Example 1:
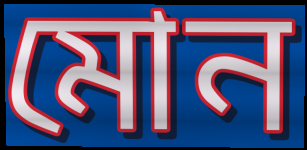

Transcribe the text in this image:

মোন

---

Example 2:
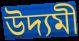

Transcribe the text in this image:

উদ্যমী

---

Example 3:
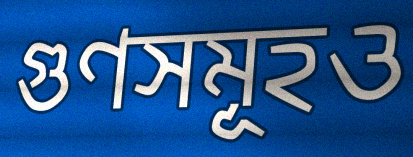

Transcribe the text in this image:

গুণসমূহও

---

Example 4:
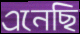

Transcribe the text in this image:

এনেছি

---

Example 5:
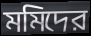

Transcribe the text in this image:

মমিদের